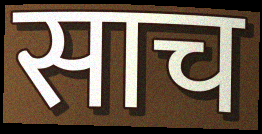
साच